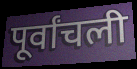
पूर्वांचली